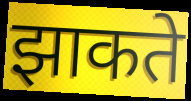
झाकते